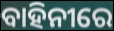
ବାହିନୀରେ